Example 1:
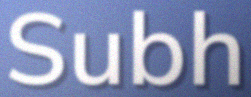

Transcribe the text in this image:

Subh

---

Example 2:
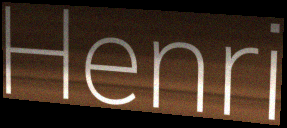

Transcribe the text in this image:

Henri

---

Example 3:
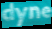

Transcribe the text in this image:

dyne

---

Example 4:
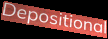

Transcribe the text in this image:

Depositional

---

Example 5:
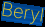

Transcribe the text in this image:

Beryl